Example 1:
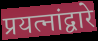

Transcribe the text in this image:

प्रयत्नांद्वारे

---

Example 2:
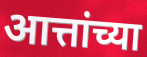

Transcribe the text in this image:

आत्तांच्या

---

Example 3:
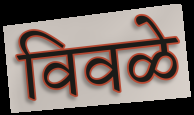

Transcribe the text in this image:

विवळे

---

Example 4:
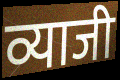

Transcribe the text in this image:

व्याजी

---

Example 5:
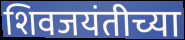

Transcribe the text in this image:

शिवजयंतीच्या